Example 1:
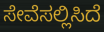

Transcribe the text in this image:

ಸೇವೆಸಲ್ಲಿಸಿದೆ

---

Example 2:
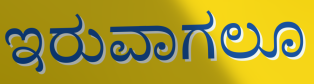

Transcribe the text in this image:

ಇರುವಾಗಲೂ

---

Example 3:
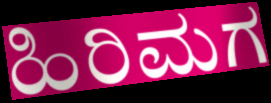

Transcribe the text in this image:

ಹಿರಿಮಗ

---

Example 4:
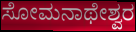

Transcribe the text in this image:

ಸೋಮನಾಥೇಶ್ವರ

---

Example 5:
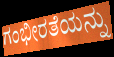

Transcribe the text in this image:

ಗಂಭೀರತೆಯನ್ನು